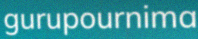
gurupournima